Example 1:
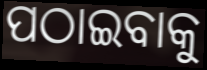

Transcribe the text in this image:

ପଠାଇବାକୁ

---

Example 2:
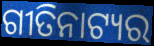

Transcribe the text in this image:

ଗୀତିନାଟ୍ୟର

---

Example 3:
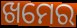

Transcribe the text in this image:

ଖମେର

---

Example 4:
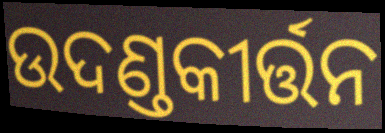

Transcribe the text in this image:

ଉଦଣ୍ଡକୀର୍ତ୍ତନ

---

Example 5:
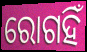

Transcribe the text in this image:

ରୋଗହିଁ